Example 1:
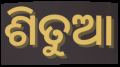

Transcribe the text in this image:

ଶିତୁଆ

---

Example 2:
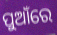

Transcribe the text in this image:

ପୁଆଁରେ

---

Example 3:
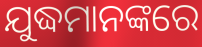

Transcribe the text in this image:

ଯୁଦ୍ଧମାନଙ୍କରେ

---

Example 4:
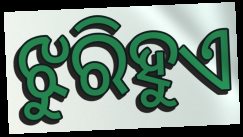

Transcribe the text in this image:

ଝୁରିହୁଏ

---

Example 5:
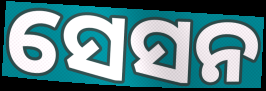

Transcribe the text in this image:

ସେସନ